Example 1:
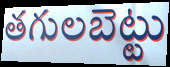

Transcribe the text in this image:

తగులబెట్టు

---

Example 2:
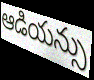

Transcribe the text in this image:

ఆడియన్సు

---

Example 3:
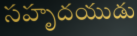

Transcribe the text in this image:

సహృదయుడు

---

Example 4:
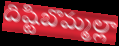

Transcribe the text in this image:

దిష్టిబొమ్మల్లా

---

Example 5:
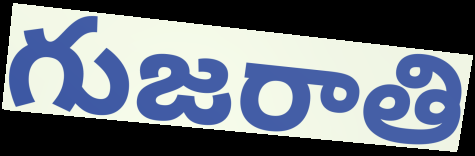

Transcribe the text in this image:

గుజరాతి